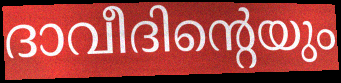
ദാവീദിന്റെയും